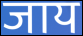
जाय